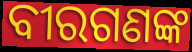
ବୀରଗଣଙ୍କ